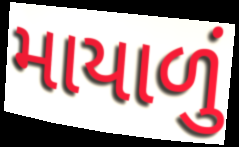
માયાળું